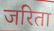
जरिता